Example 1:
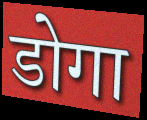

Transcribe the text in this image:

डोगा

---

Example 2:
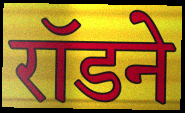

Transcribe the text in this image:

रॉडने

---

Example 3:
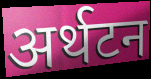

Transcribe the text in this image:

अर्थटन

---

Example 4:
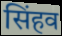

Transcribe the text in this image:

सिंहव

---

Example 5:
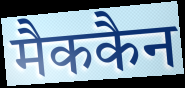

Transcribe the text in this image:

मैककैन